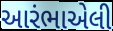
આરંભાએલી